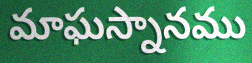
మాఘస్నానము